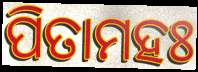
ପିତାମହଃ